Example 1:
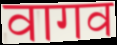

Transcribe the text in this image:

वागव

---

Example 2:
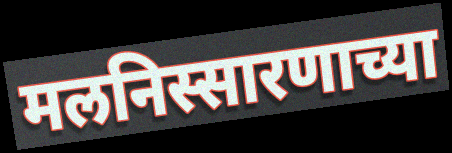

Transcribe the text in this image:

मलनिस्सारणाच्या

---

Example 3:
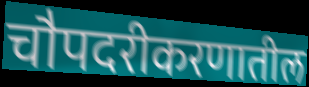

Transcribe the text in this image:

चौपदरीकरणातील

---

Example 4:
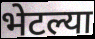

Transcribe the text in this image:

भेटल्या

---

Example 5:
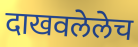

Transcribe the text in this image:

दाखवलेलेच